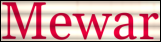
Mewar